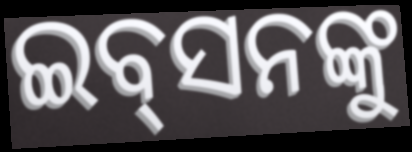
ଇବ୍‌ସନଙ୍କୁ